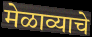
मेळाव्याचे